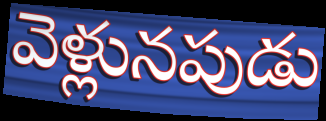
వెళ్లునపుడు